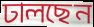
ঢালছেন